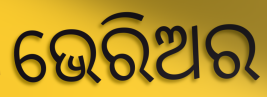
ଭେରିଅର